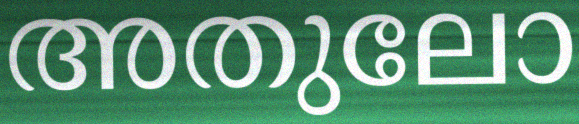
അതുലോ